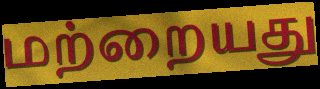
மற்றையது